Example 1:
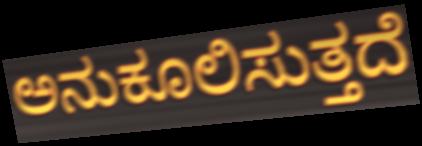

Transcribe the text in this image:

ಅನುಕೂಲಿಸುತ್ತದೆ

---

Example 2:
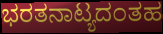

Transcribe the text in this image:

ಭರತನಾಟ್ಯದಂತಹ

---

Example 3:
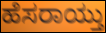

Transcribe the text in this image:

ಹೆಸರಾಯ್ತು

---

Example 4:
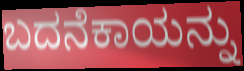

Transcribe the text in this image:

ಬದನೆಕಾಯನ್ನು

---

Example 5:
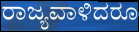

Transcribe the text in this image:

ರಾಜ್ಯವಾಳಿದರೂ